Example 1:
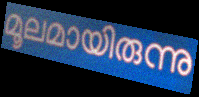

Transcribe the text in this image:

മൂലമായിരുന്നു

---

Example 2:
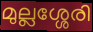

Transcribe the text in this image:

മുല്ലശ്ശേരി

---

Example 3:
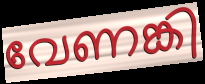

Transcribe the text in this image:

വേണങ്കി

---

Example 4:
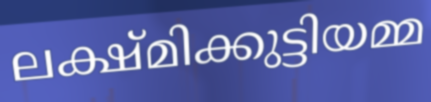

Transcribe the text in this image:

ലക്ഷ്മിക്കുട്ടിയമ്മ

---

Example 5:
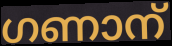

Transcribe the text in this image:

ഗണാന്